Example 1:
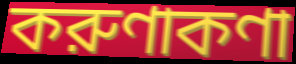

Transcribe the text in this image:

করুণাকণা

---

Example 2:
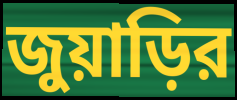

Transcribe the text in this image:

জুয়াড়ির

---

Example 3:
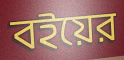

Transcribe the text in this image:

বইয়ের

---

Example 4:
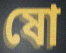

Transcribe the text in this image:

ষো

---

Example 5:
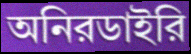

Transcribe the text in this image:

অনিরডাইরি